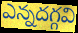
ఎన్నదగ్గవి